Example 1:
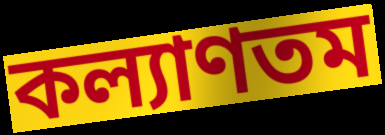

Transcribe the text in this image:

কল্যাণতম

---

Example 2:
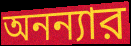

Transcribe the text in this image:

অনন্যার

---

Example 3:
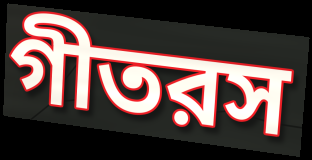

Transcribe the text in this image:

গীতরস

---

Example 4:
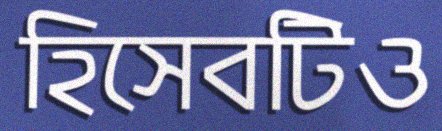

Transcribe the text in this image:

হিসেবটিও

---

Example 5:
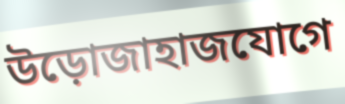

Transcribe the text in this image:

উড়োজাহাজযোগে